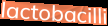
lactobacilli